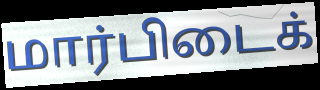
மார்பிடைக்